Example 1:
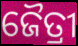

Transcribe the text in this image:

ଜୈତ୍ରୀ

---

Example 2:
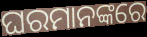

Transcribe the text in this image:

ଘରମାନଙ୍କରେ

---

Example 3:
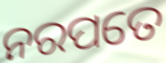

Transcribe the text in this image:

ନରପତେ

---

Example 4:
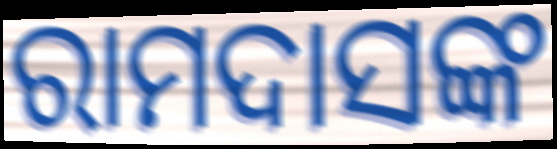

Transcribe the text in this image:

ରାମଦାସଙ୍କ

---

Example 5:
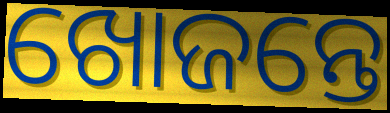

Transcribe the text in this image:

ଖୋଜନ୍ତେ